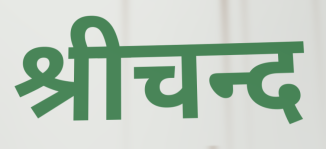
श्रीचन्द